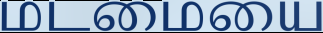
மடமையை